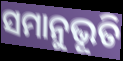
ସମାନୁଭୂତି